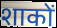
शाकों